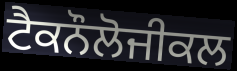
ਟੈਕਨੌਲੋਜੀਕਲ